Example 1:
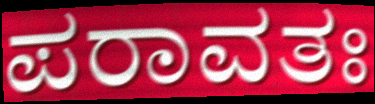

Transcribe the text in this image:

ಪರಾವತಃ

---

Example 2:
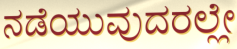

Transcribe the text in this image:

ನಡೆಯುವುದರಲ್ಲೇ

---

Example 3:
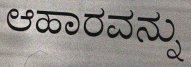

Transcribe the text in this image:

ಆಹಾರವನ್ನು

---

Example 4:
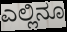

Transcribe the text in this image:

ಎಲ್ಲಿನೂ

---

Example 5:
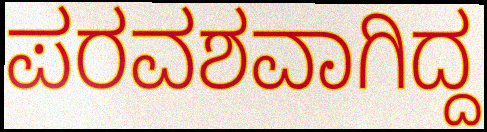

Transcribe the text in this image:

ಪರವಶವಾಗಿದ್ದ